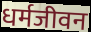
धर्मजीवन